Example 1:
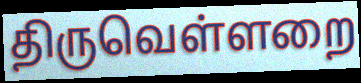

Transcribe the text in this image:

திருவெள்ளறை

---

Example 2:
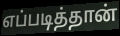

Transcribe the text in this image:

எப்படித்தான்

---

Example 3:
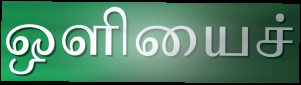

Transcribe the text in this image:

ஒளியைச்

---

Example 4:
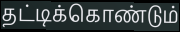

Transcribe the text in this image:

தட்டிக்கொண்டும்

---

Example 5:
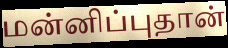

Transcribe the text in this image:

மன்னிப்புதான்